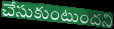
చేసుకుంటుందని